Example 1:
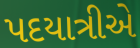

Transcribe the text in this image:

પદયાત્રીએ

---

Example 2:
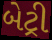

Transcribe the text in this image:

બેટ્રી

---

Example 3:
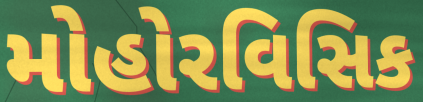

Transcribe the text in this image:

મોહોરવિસિક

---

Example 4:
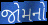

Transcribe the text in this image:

જોમનો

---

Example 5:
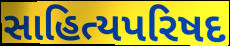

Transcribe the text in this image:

સાહિત્યપરિષદ